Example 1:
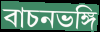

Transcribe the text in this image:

বাচনভঙ্গি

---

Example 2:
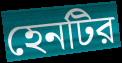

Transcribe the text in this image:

হেনটির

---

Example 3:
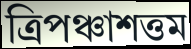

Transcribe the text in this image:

ত্রিপঞ্চাশত্তম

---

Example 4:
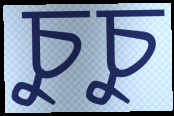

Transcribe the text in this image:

চুচু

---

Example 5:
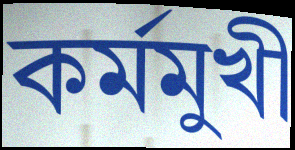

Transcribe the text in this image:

কর্মমুখী